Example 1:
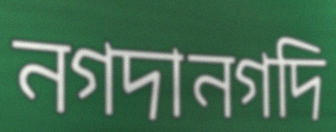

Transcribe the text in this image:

নগদানগদি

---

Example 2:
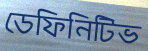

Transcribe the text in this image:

ডেফিনিটিভ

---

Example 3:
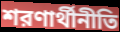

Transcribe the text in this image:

শরণার্থীনীতি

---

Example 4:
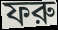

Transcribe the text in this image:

ফরু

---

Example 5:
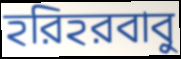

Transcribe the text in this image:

হরিহরবাবু